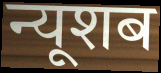
न्यूशब